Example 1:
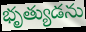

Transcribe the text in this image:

భృత్యుడను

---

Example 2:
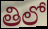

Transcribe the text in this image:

తిలో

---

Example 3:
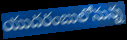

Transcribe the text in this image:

యుదరంబులోనున్న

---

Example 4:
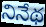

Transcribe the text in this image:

నినేథ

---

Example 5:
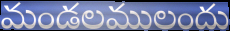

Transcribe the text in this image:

మండలములందు